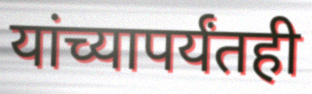
यांच्यापर्यंतही